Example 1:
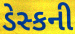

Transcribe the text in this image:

ડેસ્કની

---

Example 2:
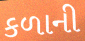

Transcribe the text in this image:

કળાની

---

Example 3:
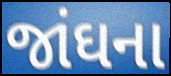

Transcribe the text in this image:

જાંઘના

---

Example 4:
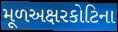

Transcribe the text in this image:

મૂળઅક્ષરકોટિના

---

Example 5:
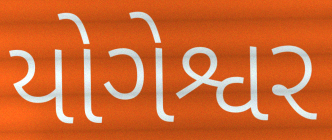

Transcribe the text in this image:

યોગેશ્વર